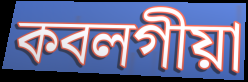
কবলগীয়া